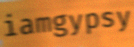
iamgypsy